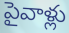
పైవాళ్లు